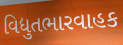
વિદ્યુતભારવાહક